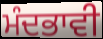
ਮੰਦਭਾਵੀ